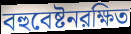
বহুবেষ্টনরক্ষিত